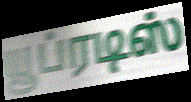
யூப்ரடிஸ்